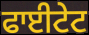
ਫਾਈਟੇਟ